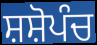
ਸ਼ਸ਼ੋਪੰਚ